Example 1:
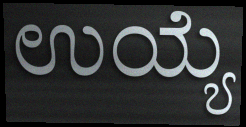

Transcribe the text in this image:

ಉಯ್ಯೆ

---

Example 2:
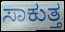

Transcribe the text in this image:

ಸಾಕುತ್ತ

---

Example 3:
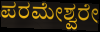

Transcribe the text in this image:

ಪರಮೇಶ್ವರೇ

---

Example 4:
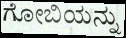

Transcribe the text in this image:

ಗೋಬಿಯನ್ನು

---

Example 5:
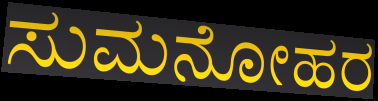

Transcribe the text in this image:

ಸುಮನೋಹರ